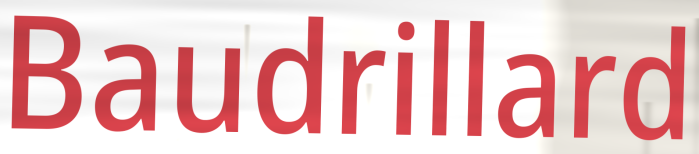
Baudrillard